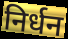
निर्धन